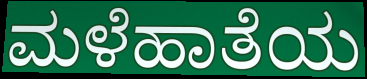
ಮಳೆಹಾತೆಯ